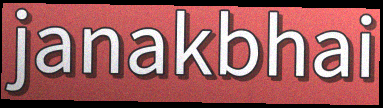
janakbhai